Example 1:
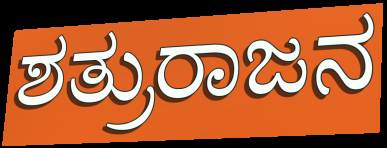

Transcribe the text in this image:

ಶತ್ರುರಾಜನ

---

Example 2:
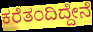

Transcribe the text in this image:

ಕರೆತಂದಿದ್ದೇನೆ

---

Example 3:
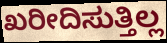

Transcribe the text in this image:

ಖರೀದಿಸುತ್ತಿಲ್ಲ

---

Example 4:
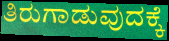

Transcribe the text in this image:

ತಿರುಗಾಡುವುದಕ್ಕೆ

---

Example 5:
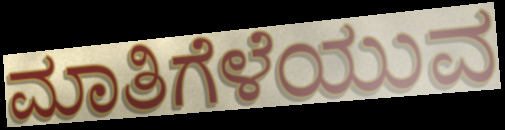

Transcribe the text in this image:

ಮಾತಿಗೆಳೆಯುವ